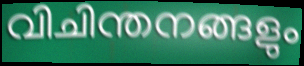
വിചിന്തനങ്ങളും